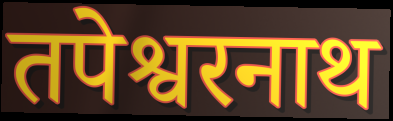
तपेश्वरनाथ